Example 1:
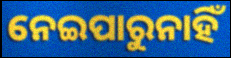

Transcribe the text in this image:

ନେଇପାରୁନାହିଁ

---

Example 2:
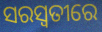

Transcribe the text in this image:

ସରସ୍ୱତୀରେ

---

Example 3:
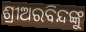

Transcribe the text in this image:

ଶ୍ରୀଅରବିନ୍ଦଙ୍କୁ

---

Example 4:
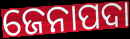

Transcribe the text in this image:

ଜେନାପଦା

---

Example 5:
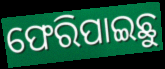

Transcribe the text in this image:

ଫେରିପାଇଛୁ